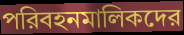
পরিবহনমালিকদের